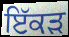
ਇੱਕੜ